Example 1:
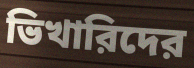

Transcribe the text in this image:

ভিখারিদের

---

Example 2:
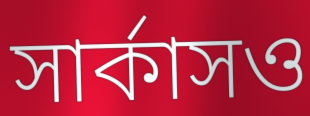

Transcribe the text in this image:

সার্কাসও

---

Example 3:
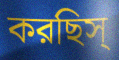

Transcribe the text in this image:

করছিস্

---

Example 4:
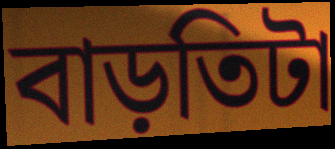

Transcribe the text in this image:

বাড়তিটা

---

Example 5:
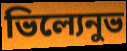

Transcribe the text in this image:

ভিল্যেনুভ